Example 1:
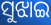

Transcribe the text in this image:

ସୁଝାଇ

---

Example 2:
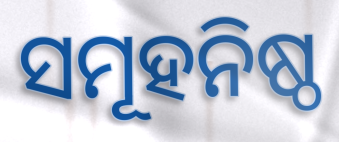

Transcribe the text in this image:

ସମୂହନିଷ୍ଠ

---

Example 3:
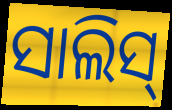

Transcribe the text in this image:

ସାଲିସ୍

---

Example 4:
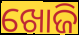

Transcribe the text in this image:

ଖୋଜି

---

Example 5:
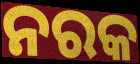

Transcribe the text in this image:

ନରକ